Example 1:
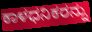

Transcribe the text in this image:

ಕಾಳಧನಿಕರನ್ನು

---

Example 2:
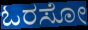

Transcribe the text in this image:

ಓರಸೋ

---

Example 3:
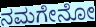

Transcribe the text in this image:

ನಮಗೇನೋ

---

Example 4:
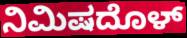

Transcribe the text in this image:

ನಿಮಿಷದೊಳ್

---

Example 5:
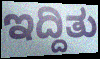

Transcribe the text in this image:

ಇದ್ದಿತು